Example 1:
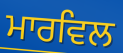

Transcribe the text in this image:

ਮਾਰਵਿਲ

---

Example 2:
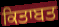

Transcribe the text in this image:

ਕਿਤਾਬਤ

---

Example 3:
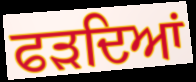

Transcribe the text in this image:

ਫੜਦਿਆਂ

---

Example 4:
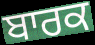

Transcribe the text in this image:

ਬਾਰਕ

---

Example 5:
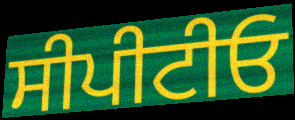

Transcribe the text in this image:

ਸੀਪੀਟੀਓ